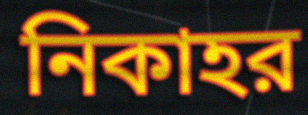
নিকাহর